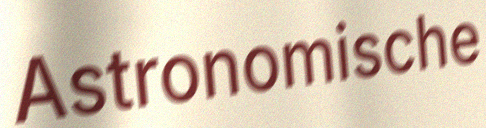
Astronomische